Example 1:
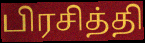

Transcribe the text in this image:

பிரசித்தி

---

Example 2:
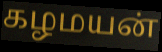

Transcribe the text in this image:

கழமயன்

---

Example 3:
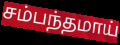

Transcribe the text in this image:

சம்பந்தமாய்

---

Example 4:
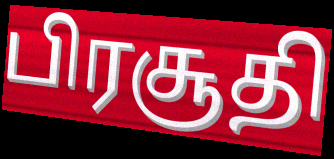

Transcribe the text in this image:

பிரசூதி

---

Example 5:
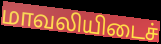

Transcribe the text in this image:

மாவலியிடைச்